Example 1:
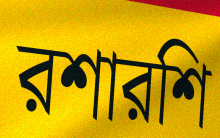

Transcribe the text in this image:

রশারশি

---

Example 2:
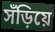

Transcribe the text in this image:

সঁড়িয়ে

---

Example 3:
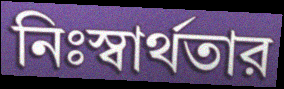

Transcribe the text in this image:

নিঃস্বার্থতার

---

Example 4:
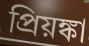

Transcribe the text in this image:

প্রিয়ঙ্কা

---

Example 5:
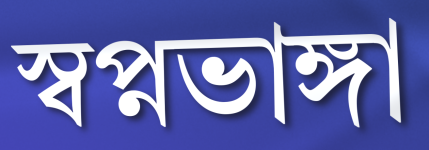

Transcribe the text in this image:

স্বপ্নভাঙ্গা